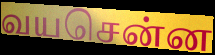
வயசென்ன